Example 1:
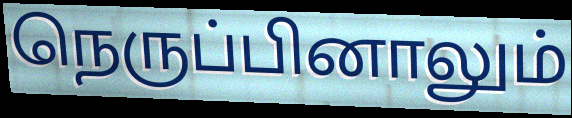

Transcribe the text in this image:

நெருப்பினாலும்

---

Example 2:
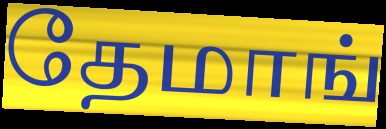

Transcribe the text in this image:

தேமாங்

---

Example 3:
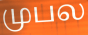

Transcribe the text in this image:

முபல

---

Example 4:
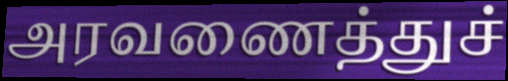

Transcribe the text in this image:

அரவணைத்துச்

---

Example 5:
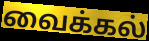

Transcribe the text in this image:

வைக்கல்